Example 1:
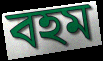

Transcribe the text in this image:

বহম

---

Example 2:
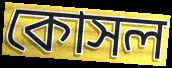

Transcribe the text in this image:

কোসল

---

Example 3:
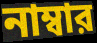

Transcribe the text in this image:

নাম্বার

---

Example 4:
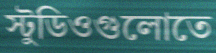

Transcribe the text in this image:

স্টুডিওগুলোতে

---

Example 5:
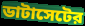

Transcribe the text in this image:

ডাটাসেটের